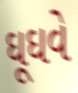
ઘૂઘવે